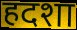
हदशा